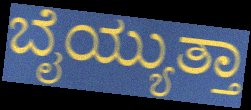
ಬೈಯ್ಯುತ್ತಾ